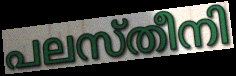
പലസ്തീനി